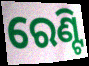
ରେଣ୍ଟି